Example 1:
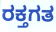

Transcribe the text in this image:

ರಕ್ತಗತ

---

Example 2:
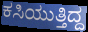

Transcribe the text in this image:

ಕಸಿಯುತ್ತಿದ್ದ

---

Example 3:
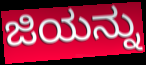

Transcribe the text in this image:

ಜಿಯನ್ನು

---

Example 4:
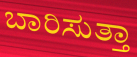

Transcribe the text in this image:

ಬಾರಿಸುತ್ತಾ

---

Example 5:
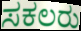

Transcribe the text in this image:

ಸಕಲರು